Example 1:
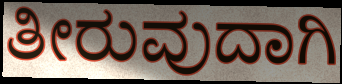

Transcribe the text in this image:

ತೀರುವುದಾಗಿ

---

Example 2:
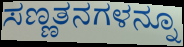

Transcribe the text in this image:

ಸಣ್ಣತನಗಳನ್ನೂ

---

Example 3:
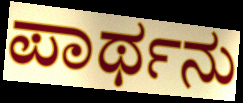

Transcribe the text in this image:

ಪಾರ್ಥನು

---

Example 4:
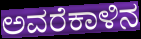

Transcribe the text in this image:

ಅವರೆಕಾಳಿನ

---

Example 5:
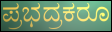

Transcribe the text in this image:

ಪ್ರಭದ್ರಕರೂ